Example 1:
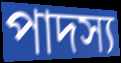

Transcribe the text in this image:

পাদস্য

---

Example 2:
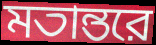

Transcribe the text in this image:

মতান্তরে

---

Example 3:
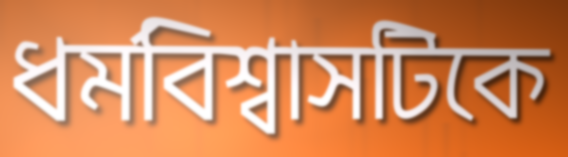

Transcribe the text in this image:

ধর্মবিশ্বাসটিকে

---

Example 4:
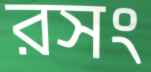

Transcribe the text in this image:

রসং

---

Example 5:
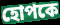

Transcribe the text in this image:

হোপকে